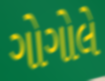
ગોગોલે